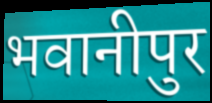
भवानीपुर